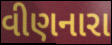
વીણનારા